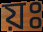
য়ঃ